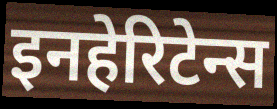
इनहेरिटेन्स